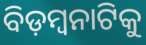
ବିଡ଼ମ୍ବନାଟିକୁ